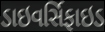
ડાઇવર્સિફાઇડ